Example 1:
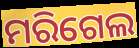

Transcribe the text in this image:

ମରିଗେଲ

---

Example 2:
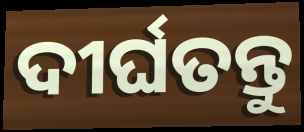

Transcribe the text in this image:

ଦୀର୍ଘତନ୍ତୁ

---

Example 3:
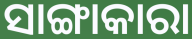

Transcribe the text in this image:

ସାଙ୍ଗାକାରା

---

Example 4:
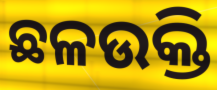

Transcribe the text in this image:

ଛଳଉକ୍ତି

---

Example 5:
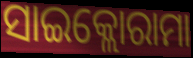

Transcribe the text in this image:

ସାଇକ୍ଲୋରାମା